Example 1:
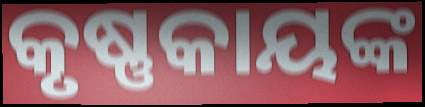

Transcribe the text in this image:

କୃଷ୍ଣକାୟଙ୍କ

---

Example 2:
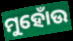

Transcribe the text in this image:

ମୁହୋଁଉ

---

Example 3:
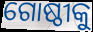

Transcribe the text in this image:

ଗୋଷ୍ଠୀକୁ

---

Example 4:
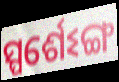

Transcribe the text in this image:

ସ୍ପର୍ଶେଽଙ୍ଗ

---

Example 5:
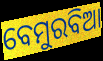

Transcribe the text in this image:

ବେମୁରବିଆ